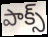
పాక్స్